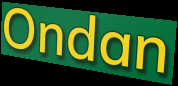
Ondan